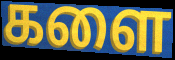
களை